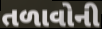
તળાવોની